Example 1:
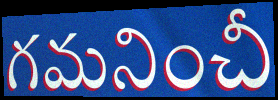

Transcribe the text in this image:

గమనించీ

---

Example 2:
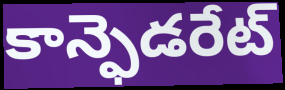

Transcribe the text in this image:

కాన్ఫెడరేట్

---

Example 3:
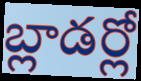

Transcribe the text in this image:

బ్లాడర్లో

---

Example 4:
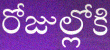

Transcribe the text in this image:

రోజుల్లోకి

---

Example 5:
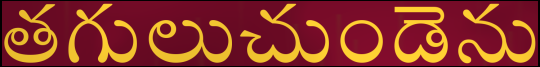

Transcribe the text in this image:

తగులుచుండెను